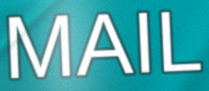
MAIL